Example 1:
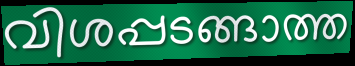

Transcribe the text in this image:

വിശപ്പടങ്ങാത്ത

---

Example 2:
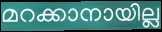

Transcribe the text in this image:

മറക്കാനായില്ല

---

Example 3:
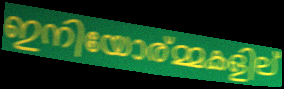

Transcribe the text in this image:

ഇനിയോര്മ്മകളില്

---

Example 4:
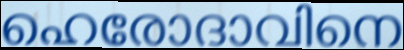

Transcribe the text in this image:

ഹെരോദാവിനെ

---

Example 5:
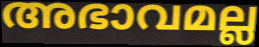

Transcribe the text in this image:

അഭാവമല്ല